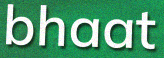
bhaat